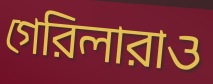
গেরিলারাও